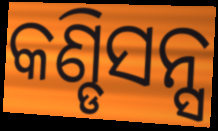
କଣ୍ଡିସନ୍ସ